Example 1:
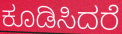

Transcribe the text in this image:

ಕೂಡಿಸಿದರೆ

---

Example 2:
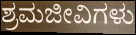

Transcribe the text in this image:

ಶ್ರಮಜೀವಿಗಳು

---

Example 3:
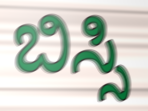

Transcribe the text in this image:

ಬಿಸ್ಸಿ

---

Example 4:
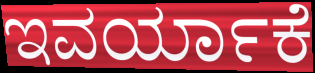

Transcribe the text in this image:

ಇವರ್ಯಾಕೆ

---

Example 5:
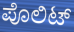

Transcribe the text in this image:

ಪೊಲಿಟ್